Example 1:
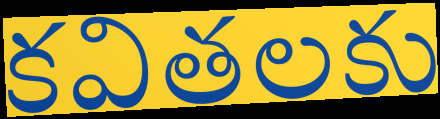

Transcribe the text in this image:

కవితలకు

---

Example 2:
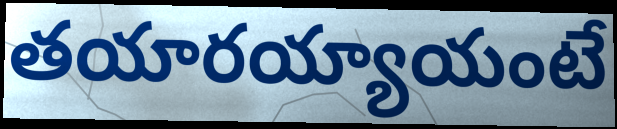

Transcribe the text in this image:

తయారయ్యాయంటే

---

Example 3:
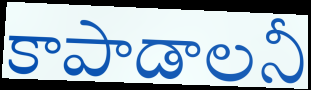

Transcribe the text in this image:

కాపాడాలనీ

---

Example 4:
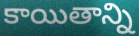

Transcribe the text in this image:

కాయితాన్ని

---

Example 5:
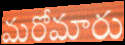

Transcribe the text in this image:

మరోమారు